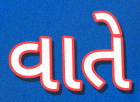
વાતે